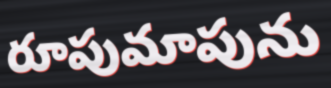
రూపుమాపును